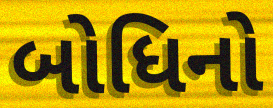
બોધિનો